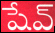
షేవ్